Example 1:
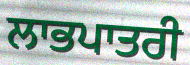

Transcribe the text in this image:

ਲਾਭਪਾਤਰੀ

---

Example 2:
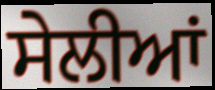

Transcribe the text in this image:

ਸੇਲੀਆਂ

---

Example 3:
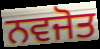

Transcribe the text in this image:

ਨਵਜੋਤ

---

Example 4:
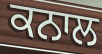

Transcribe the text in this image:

ਕਨਾਲ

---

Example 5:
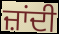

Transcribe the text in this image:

ਜ਼ਾਂਦੀ